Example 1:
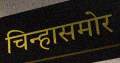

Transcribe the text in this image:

चिन्हासमोर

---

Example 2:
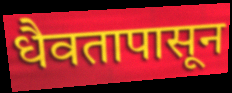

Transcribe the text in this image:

धैवतापासून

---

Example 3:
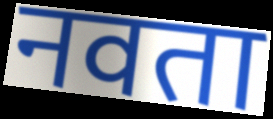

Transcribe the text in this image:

नवता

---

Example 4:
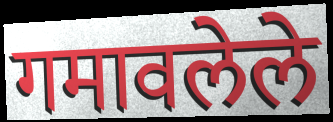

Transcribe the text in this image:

गमावलेले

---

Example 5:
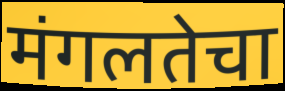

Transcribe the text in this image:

मंगलतेचा